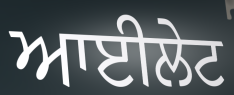
ਆਈਲੇਟ